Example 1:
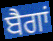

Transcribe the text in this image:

ਬੈਗਾਂ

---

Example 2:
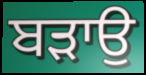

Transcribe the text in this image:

ਬਡ਼ਾਉ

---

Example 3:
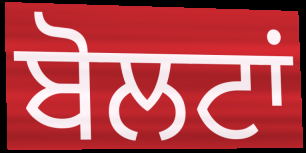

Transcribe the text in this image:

ਬੋਲਟਾਂ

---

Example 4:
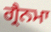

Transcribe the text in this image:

ਗ੍ਰੈਨਮਾ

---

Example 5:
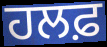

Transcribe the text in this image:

ਹਲਫ਼